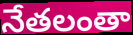
నేతలంతా